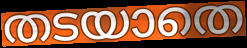
തടയാതെ